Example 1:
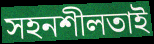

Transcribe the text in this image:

সহনশীলতাই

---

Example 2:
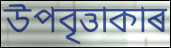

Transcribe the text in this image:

উপবৃত্তাকাৰ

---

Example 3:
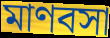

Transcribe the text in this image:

মাণবসা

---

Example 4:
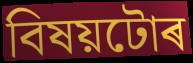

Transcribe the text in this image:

বিষয়টোৰ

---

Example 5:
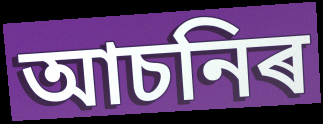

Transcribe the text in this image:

আচনিৰ